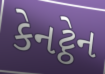
કેનટ્ઠેન